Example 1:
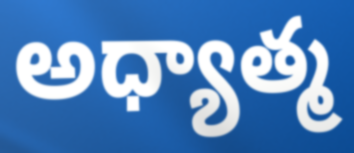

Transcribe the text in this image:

అధ్యాత్మ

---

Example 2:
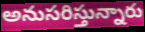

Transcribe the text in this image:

అనుసరిస్తున్నారు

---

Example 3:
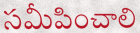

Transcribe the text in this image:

సమీపించాలి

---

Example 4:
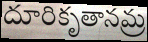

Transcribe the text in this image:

దూరికృతానమ్ర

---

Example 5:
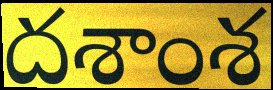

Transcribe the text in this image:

దశాంశ